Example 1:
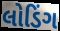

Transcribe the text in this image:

લોડિંગ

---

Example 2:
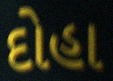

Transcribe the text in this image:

દોહા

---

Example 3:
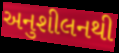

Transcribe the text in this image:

અનુશીલનથી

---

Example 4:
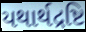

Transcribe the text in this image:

યથાર્થદ્રષ્ટિ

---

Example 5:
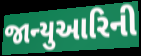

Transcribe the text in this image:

જાન્યુઆરિની